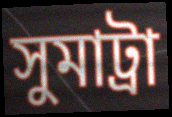
সুমাট্ৰা